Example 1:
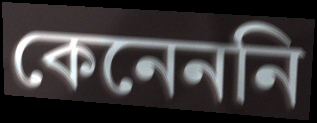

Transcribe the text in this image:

কেনেননি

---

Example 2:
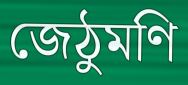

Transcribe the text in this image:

জেঠুমণি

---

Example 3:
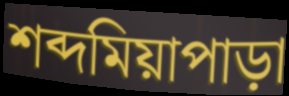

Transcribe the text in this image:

শব্দমিয়াপাড়া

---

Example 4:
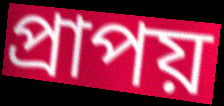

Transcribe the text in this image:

প্রাপয়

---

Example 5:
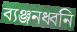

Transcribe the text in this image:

ব্যঞ্জনধ্বনি